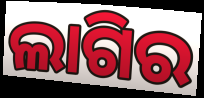
ଲାଗିର